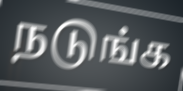
நடுங்க